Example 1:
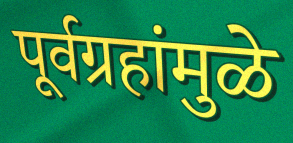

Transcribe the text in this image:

पूर्वग्रहांमुळे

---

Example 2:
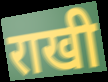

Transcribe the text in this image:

राखी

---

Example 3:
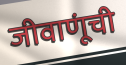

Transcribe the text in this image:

जीवाणूंची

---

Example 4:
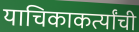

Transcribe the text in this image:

याचिकाकर्त्यांची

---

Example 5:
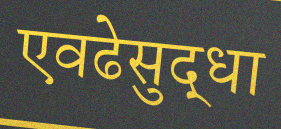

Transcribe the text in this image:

एवढेसुद्धा